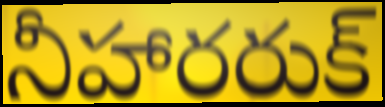
నీహారరుక్